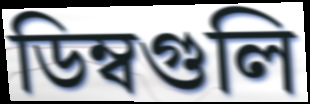
ডিম্বগুলি